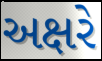
અક્ષરે